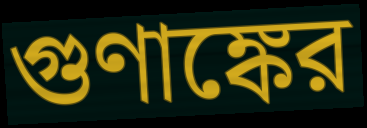
গুণাঙ্কের